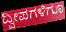
ದ್ವೀಪಗಳಿಗೂ